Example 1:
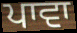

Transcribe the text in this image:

ਪਾਵਾ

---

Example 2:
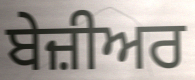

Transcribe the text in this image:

ਬੇਜ਼ੀਅਰ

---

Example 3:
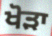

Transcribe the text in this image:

ਖੋੜਾ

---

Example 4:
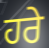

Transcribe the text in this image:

ਹਰੇ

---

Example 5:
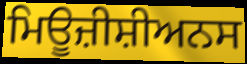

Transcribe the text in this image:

ਮਿਊਜ਼ੀਸ਼ੀਅਨਸ